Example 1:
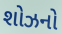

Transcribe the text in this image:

શોઝનો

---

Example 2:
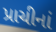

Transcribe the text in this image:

પ્રાચીનાં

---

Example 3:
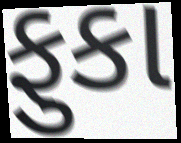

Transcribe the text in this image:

ફુકા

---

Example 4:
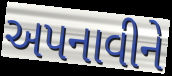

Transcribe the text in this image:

અપનાવીને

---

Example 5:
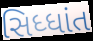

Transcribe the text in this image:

સિધ્ધાંત